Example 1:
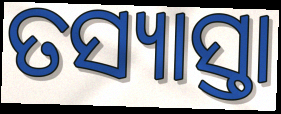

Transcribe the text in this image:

ତସ୍ୟାସ୍ତା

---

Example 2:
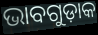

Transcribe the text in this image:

ଭାବଗୁଡ଼ାକ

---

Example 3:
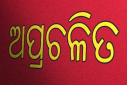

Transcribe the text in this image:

ଅପ୍ରଚଳିତ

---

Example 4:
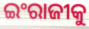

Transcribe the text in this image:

ଇଂରାଜୀକୁ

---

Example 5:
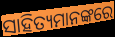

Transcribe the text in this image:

ସାହିତ୍ୟମାନଙ୍କରେ